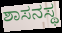
ಶಾಸನಸ್ಥ